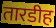
तारडीह